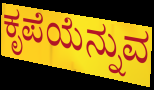
ಕೃಪೆಯೆನ್ನುವ